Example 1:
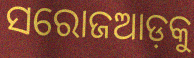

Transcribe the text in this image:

ସରୋଜଆଡ଼କୁ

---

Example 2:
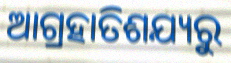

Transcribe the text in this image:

ଆଗ୍ରହାତିଶଯ୍ୟରୁ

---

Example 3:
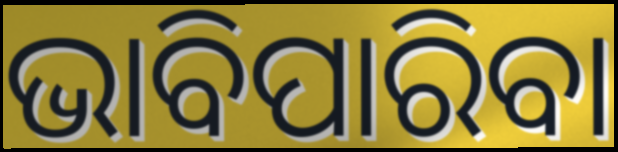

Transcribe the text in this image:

ଭାବିପାରିବା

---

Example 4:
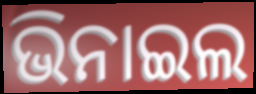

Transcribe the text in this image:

ଭିନାଇଲ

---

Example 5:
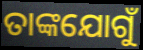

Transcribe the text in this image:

ତାଙ୍କଯୋଗୁଁ